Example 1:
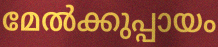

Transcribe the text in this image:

മേൽക്കുപ്പായം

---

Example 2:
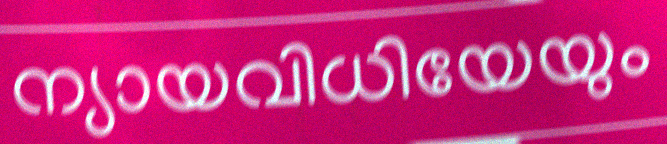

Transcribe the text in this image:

ന്യായവിധിയേയും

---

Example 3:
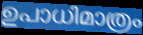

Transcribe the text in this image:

ഉപാധിമാത്രം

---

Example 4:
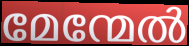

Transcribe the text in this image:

മേന്മേൽ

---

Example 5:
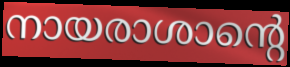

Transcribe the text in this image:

നായരാശാന്റെ